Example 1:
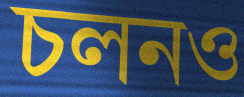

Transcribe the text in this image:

চলনও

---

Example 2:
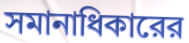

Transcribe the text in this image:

সমানাধিকারের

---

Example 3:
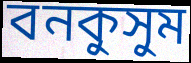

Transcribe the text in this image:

বনকুসুম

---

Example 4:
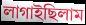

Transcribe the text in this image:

লাগাইছিলাম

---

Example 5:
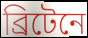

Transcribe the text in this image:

ব্রিটেনে